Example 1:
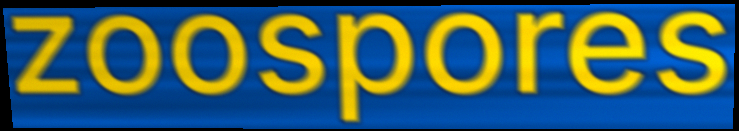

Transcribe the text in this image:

zoospores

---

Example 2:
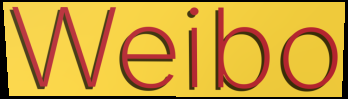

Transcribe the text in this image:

Weibo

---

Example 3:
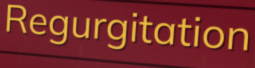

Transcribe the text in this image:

Regurgitation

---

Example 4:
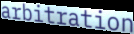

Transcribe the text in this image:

arbitration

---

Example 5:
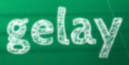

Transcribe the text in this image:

gelay